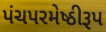
પંચપરમેષ્ઠીરૂપ